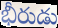
భీరుడు